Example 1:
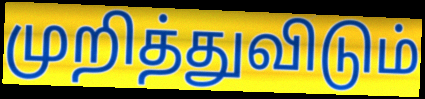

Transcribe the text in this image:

முறித்துவிடும்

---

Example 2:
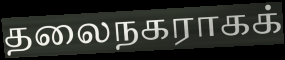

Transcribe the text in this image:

தலைநகராகக்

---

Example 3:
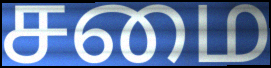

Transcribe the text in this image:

சமை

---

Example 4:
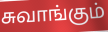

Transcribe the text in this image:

சுவாங்கும்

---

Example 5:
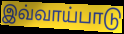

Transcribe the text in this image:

இவ்வாய்பாடு